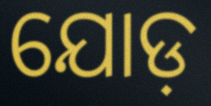
ଯୋଡ଼